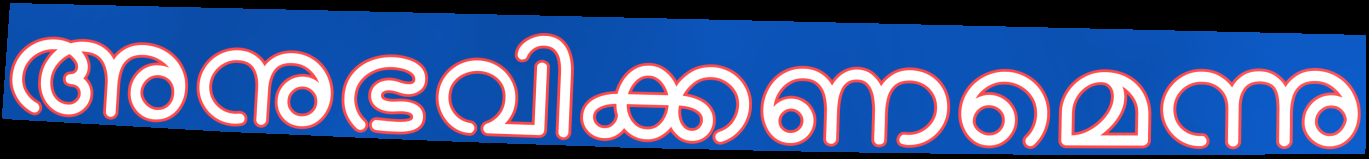
അനുഭവിക്കണമെന്നു